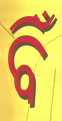
ବିଁ